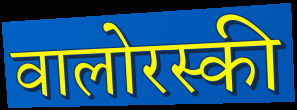
वालोरस्की